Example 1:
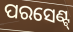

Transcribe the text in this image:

ପରସେଣ୍ଟ୍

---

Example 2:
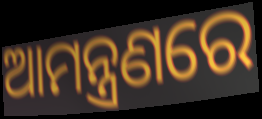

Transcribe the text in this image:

ଆମନ୍ତ୍ରଣରେ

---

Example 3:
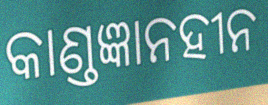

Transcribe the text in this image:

କାଣ୍ଡଜ୍ଞାନହୀନ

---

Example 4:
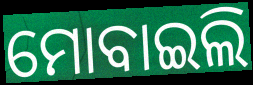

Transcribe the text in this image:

ମୋବାଇଲି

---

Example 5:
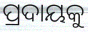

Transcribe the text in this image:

ପ୍ରଦାୟକୁ